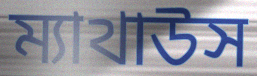
ম্যাথাউস